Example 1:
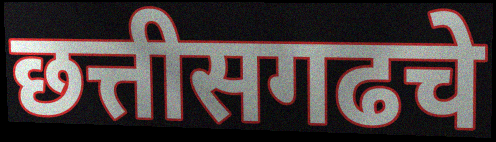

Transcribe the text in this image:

छत्तीसगढचे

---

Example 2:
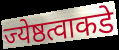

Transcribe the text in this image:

ज्येष्ठत्वाकडे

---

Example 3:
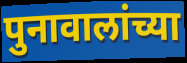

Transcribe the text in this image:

पुनावालांच्या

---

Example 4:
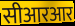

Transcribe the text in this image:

सीआरआर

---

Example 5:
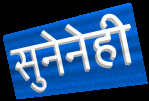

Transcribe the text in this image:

सुनेनेही